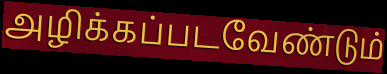
அழிக்கப்படவேண்டும்